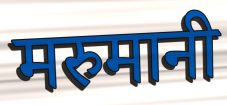
मरुमानी